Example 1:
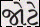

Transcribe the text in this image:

જોટે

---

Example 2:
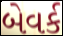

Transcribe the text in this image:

બેવર્ક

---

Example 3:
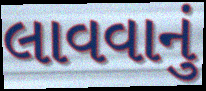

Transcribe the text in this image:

લાવવાનું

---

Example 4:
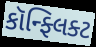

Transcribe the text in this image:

કૉન્ફ્લિક્ટ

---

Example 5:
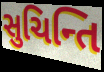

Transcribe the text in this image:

સુચિન્તિ